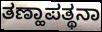
ತಣ್ಹಾಪತ್ಥನಾ